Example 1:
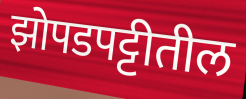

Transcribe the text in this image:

झोपडपट्टीतील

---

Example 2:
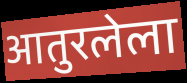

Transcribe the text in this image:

आतुरलेला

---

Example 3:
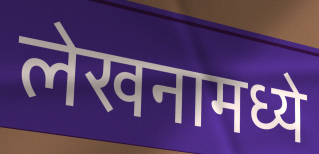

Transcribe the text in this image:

लेखनामध्ये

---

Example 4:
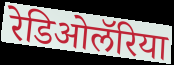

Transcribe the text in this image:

रेडिओलॅरिया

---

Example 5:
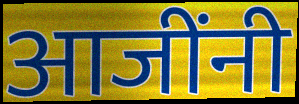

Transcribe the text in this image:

आजींनी